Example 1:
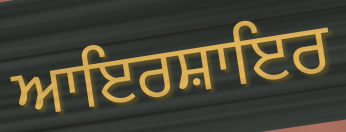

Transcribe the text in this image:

ਆਇਰਸ਼ਾਇਰ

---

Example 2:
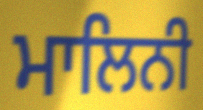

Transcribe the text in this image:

ਮਾਲਿਨੀ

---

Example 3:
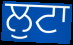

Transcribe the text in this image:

ਲੁਟਾ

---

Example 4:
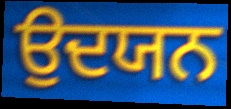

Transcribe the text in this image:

ਉਦਯਨ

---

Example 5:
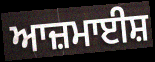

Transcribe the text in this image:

ਆਜ਼ਮਾਈਸ਼